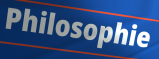
Philosophie